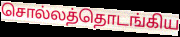
சொல்லத்தொடங்கிய